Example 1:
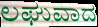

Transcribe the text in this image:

ಲಘುವಾದ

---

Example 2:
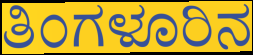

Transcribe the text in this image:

ತಿಂಗಳೂರಿನ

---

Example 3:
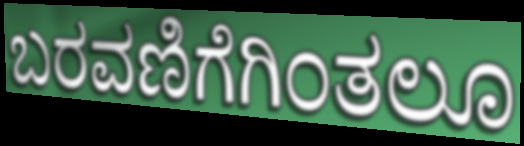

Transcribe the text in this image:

ಬರವಣಿಗೆಗಿಂತಲೂ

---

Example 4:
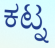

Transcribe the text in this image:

ಕಟ್ನ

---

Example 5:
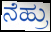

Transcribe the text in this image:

ನೆಹ್ರು